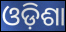
ଓଡ଼ିଶା